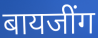
बायजींग